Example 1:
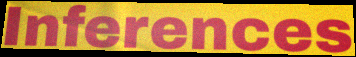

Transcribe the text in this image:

Inferences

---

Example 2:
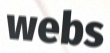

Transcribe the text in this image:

webs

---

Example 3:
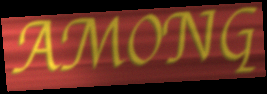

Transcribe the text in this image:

AMONG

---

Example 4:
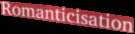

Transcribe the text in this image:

Romanticisation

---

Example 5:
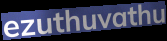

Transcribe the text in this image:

ezuthuvathu